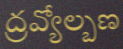
ద్రవ్యోల్బణ